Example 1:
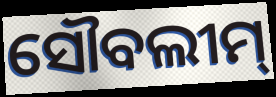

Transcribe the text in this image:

ସୌବଲୀମ୍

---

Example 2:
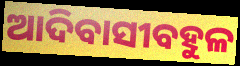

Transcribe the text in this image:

ଆଦିବାସୀବହୁଳ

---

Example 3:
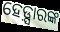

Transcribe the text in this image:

ହେଡ଼୍ସାରଙ୍କ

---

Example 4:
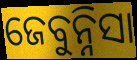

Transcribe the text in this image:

ଜେବୁନ୍ନିସା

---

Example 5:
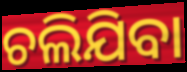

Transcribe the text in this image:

ଚଲିଯିବା